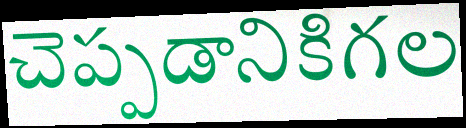
చెప్పడానికిగల